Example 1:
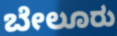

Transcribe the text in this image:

ಬೇಲೂರು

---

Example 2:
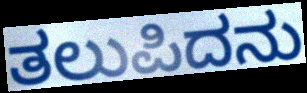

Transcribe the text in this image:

ತಲುಪಿದನು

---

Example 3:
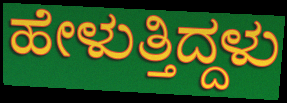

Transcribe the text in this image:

ಹೇಳುತ್ತಿದ್ದಳು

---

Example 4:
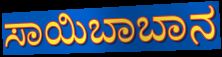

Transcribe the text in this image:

ಸಾಯಿಬಾಬಾನ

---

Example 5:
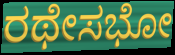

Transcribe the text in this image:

ರಥೇಸಭೋ